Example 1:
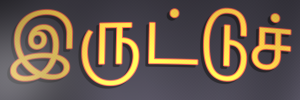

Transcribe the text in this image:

இருட்டுச்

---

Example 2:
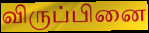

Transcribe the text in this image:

விருப்பினை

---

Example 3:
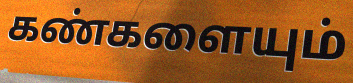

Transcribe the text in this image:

கண்களையும்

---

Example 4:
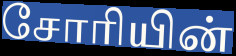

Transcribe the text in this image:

சோரியின்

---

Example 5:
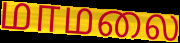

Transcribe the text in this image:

மாமலை